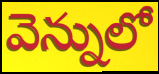
వెన్నులో